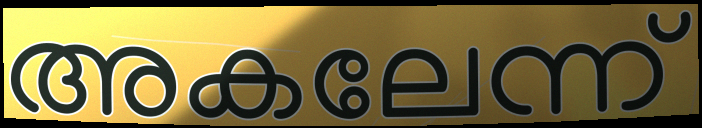
അകലേന്ന്